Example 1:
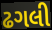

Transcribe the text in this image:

ઢગલી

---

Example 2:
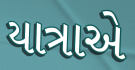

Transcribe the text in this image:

યાત્રાએ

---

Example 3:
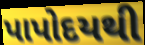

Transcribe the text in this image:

પાપોદયથી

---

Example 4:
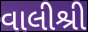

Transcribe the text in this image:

વાલીશ્રી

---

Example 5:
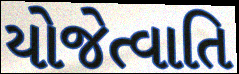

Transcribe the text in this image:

યોજેત્વાતિ